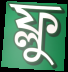
ফ্লু